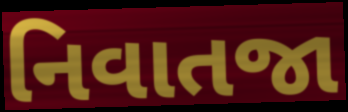
નિવાતજા